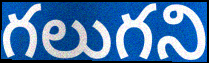
గలుగని